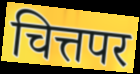
चित्तपर